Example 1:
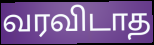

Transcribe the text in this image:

வரவிடாத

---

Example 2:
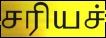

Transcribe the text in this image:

சரியச்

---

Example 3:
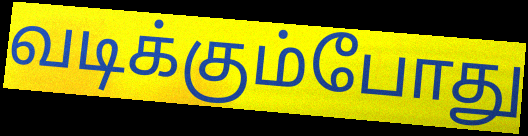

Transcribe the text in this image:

வடிக்கும்போது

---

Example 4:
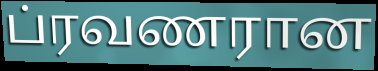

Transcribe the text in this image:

ப்ரவணரான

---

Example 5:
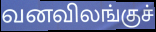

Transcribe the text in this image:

வனவிலங்குச்